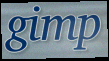
gimp